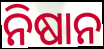
ନିଷାନ